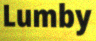
Lumby